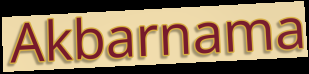
Akbarnama